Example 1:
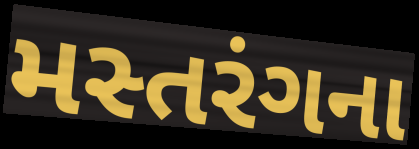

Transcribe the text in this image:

મસ્તરંગના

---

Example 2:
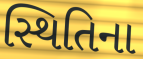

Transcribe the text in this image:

સ્થિતિના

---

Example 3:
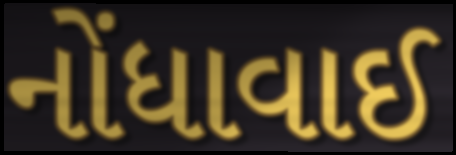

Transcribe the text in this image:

નોંધાવાઈ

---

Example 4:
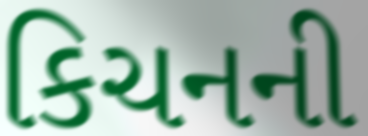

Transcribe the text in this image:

કિચનની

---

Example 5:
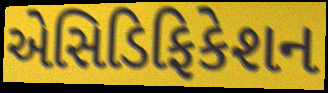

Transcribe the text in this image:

એસિડિફિકેશન